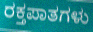
ರಕ್ತಪಾತಗಳು